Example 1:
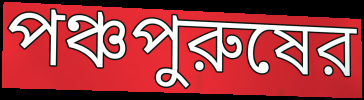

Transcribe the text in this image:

পঞ্চপুরুষের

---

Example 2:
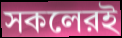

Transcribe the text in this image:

সকলেরই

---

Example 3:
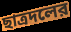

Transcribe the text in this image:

ছাত্রদলের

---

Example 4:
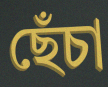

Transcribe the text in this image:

ছেঁচা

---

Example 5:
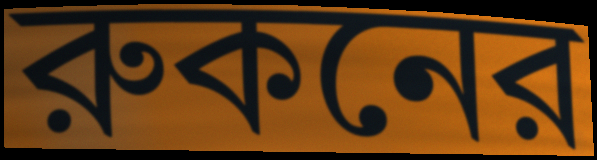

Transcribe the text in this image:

রুকনের